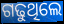
ଗଢୁଥିଲେ